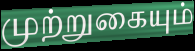
முற்றுகையும்